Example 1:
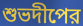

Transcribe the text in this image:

শুভদীপের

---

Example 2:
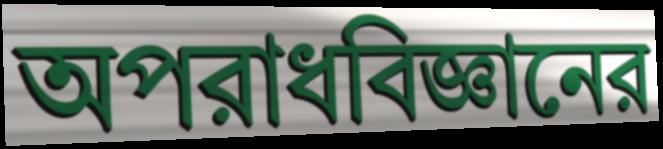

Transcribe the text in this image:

অপরাধবিজ্ঞানের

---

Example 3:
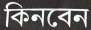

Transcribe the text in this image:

কিনবেন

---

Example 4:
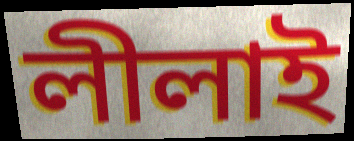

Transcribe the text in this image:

লীলাই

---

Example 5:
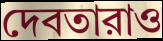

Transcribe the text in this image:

দেবতারাও